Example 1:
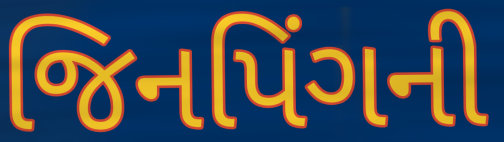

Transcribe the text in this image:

જિનપિંગની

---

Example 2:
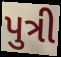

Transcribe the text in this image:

પુત્રી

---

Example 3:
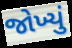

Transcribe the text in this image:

જોખ્યું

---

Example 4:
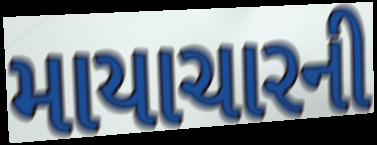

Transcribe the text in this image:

માયાચારની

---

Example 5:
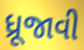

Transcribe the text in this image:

ધ્રૂજાવી